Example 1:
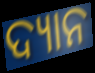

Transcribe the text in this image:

ଦ୍ୟାନ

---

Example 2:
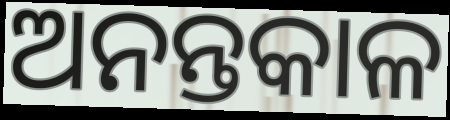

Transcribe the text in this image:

ଅନନ୍ତକାଳ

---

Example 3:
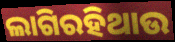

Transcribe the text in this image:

ଲାଗିରହିଥାଉ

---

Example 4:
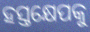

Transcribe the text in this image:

ହସ୍ତକ୍ଷେପକୁ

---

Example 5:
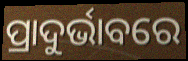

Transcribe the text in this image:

ପ୍ରାଦୁର୍ଭାବରେ